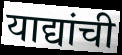
याद्यांची